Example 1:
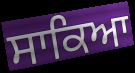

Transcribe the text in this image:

ਸਾਕਿਆ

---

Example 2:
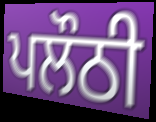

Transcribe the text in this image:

ਪਲੌਠੀ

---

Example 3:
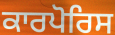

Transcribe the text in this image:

ਕਾਰਪੋਰਿਸ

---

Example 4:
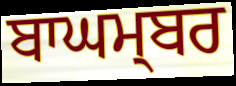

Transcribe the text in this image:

ਬਾਘਮ੍ਬਰ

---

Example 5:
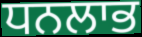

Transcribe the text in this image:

ਧਨਲਾਭ